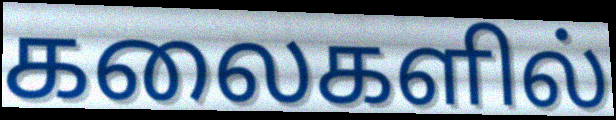
கலைகளில்